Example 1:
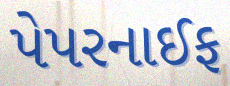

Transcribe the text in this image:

પેપરનાઈફ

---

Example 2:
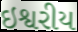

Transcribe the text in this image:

ઇશ્વરીય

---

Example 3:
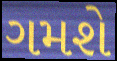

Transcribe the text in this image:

ગમશે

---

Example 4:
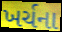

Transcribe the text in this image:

ખર્ચના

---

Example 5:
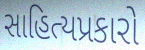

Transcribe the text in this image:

સાહિત્યપ્રકારો